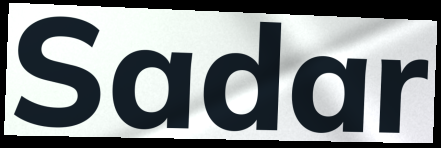
Sadar